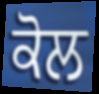
ਕੋਲ